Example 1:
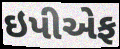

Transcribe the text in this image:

ઇપીએફ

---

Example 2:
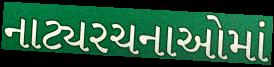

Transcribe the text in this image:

નાટ્યરચનાઓમાં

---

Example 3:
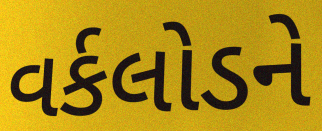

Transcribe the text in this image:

વર્કલોડને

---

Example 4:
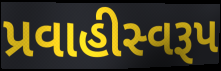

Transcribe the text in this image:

પ્રવાહીસ્વરૂપ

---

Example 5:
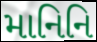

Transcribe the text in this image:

માનિનિ